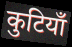
कुटियाँ